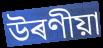
উৰণীয়া